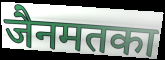
जैनमतका